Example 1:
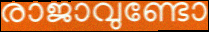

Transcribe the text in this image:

രാജാവുണ്ടോ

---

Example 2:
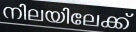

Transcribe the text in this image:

നിലയിലേക്ക്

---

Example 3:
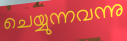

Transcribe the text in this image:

ചെയ്യുന്നവന്നു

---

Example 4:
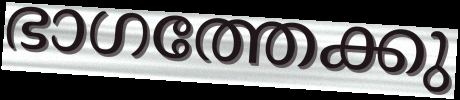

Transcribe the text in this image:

ഭാഗത്തേക്കു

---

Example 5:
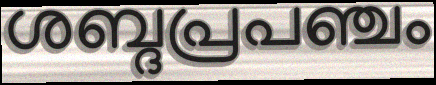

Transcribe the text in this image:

ശബ്ദപ്രപഞ്ചം